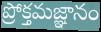
ప్రోక్తమజ్ఞానం